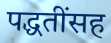
पद्धतींसह